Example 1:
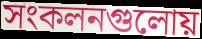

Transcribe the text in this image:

সংকলনগুলোয়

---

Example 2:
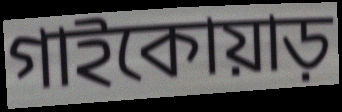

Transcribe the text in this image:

গাইকোয়াড়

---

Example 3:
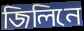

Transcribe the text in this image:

জিলিনে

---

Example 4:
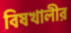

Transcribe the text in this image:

বিষখালীর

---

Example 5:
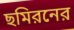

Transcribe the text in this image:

ছমিরনের